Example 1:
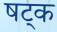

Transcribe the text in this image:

षट्क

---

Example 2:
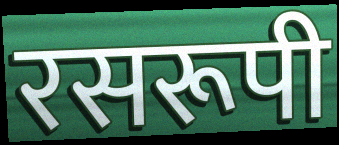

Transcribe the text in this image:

रसरूपी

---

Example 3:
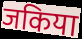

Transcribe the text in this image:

जकिया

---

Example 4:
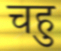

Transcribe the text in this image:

चहु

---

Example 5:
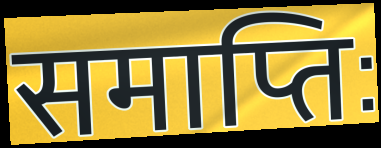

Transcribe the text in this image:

समाप्तिः